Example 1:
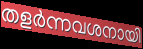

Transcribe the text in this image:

തളർന്നവശനായി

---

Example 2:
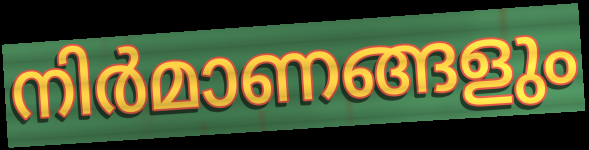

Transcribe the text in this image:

നിർമാണങ്ങളും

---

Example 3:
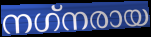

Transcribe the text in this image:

നഗ്‌നരായ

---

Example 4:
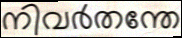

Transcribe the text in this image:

നിവർതന്തേ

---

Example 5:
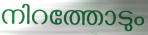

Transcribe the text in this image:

നിറത്തോടും